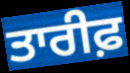
ਤਾਰੀਫ਼